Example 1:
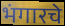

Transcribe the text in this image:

भंगारचे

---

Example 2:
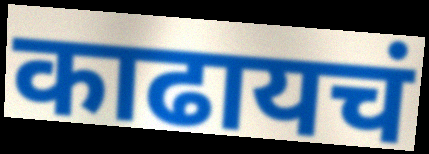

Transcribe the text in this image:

काढायचं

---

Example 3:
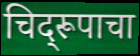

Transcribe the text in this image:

चिद्‌रूपाचा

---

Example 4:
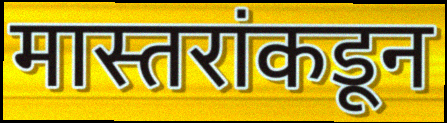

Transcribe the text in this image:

मास्तरांकडून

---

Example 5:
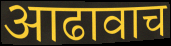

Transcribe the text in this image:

आढावाच